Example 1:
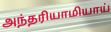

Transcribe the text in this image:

அந்தரியாமியாய்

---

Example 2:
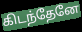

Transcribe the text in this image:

கிடந்தேனே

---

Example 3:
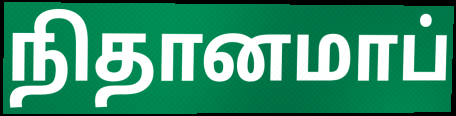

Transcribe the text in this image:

நிதானமாப்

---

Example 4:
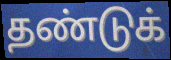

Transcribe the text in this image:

தண்டுக்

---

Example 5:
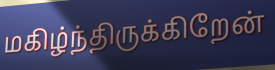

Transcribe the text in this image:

மகிழ்ந்திருக்கிறேன்